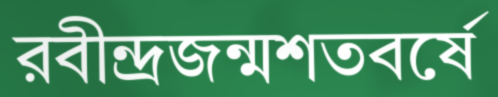
রবীন্দ্রজন্মশতবর্ষে